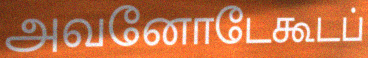
அவனோடேகூடப்